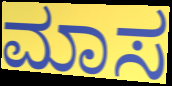
ಮಾಸ